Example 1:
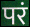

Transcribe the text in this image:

परं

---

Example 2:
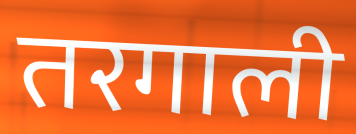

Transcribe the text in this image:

तरगाली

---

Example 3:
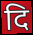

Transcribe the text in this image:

दि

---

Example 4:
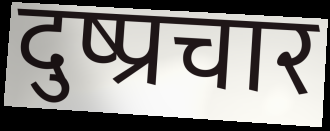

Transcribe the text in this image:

दुष्‍प्रचार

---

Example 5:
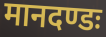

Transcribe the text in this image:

मानदण्डः